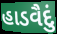
હાડવૈદું